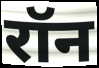
रॉन